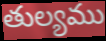
తుల్యము